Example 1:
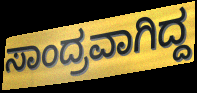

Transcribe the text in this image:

ಸಾಂದ್ರವಾಗಿದ್ದ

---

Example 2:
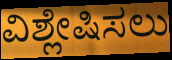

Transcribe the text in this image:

ವಿಶ್ಲೇಷಿಸಲು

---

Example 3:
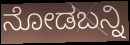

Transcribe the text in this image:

ನೋಡಬನ್ನಿ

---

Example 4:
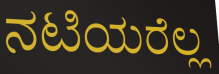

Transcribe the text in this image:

ನಟಿಯರೆಲ್ಲ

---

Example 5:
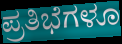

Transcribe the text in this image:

ಪ್ರತಿಭೆಗಳೂ